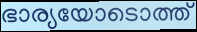
ഭാര്യയോടൊത്ത്